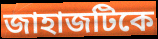
জাহাজটিকে